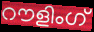
റൗളിംഗ്